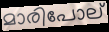
മാരിപോല്